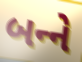
બન્‍ને